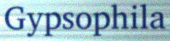
Gypsophila